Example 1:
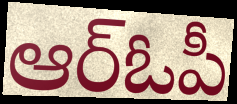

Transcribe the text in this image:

ఆర్ఓపీ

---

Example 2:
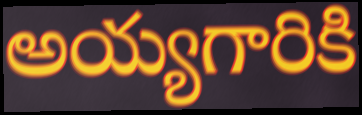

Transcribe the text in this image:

అయ్యగారికి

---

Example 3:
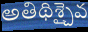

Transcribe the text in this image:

అతిథిశ్చైవ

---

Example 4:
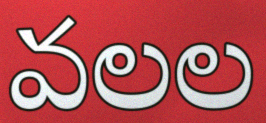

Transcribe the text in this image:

వలల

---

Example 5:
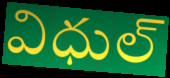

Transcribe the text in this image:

విధుల్